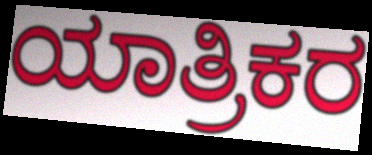
ಯಾತ್ರಿಕರ